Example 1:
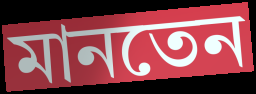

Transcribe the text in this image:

মানতেন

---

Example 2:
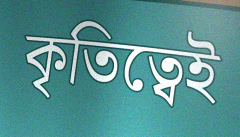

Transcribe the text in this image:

কৃতিত্বেই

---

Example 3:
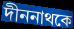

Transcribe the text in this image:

দীননাথকে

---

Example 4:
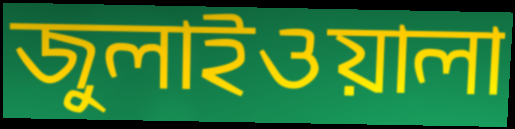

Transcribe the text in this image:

জুলাইওয়ালা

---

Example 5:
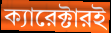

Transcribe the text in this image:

ক্যারেক্টারই